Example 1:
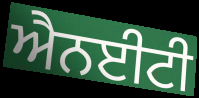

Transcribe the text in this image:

ਐਨਈਟੀ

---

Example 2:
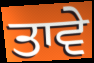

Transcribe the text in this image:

ਤਾਵੇ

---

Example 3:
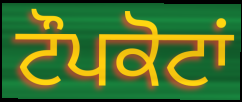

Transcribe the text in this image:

ਟੌਪਕੋਟਾਂ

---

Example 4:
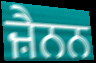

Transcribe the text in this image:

ਜ਼ੈਨਨ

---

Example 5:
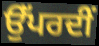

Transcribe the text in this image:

ਉੱਪਰਦੀਂ